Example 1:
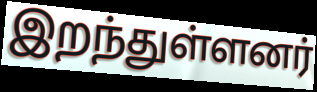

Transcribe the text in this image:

இறந்துள்ளனர்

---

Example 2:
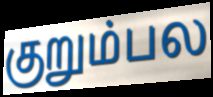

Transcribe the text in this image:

குறும்பல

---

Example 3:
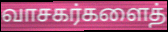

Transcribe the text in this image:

வாசகர்களைத்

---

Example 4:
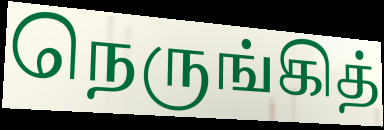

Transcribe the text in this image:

நெருங்கித்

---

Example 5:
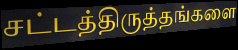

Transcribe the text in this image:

சட்டத்திருத்தங்களை